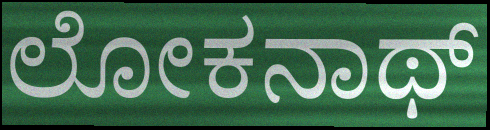
ಲೋಕನಾಥ್